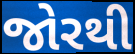
જોરથી